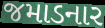
જમાડનાર